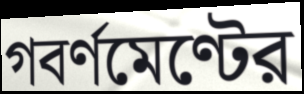
গবর্ণমেণ্টের